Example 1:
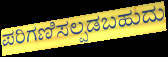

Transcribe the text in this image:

ಪರಿಗಣಿಸಲ್ಪಡಬಹುದು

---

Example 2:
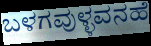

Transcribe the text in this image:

ಬಳಗವುಳ್ಳವನಹೆ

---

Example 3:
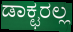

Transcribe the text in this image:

ಡಾಕ್ಟರಲ್ಲ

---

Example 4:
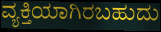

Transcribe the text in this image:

ವ್ಯಕ್ತಿಯಾಗಿರಬಹುದು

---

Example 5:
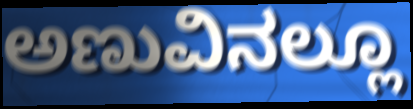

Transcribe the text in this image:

ಅಣುವಿನಲ್ಲೂ